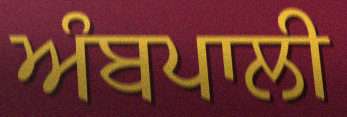
ਅੰਬਪਾਲੀ